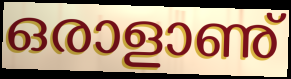
ഒരാളാണു്